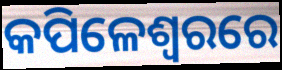
କପିଳେଶ୍ୱରରେ